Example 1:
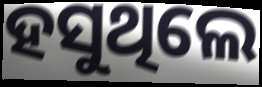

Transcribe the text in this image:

ହସୁଥିଲେ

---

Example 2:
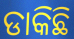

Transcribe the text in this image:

ଡାକିଛି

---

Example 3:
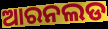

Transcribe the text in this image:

ଆରନଲଡ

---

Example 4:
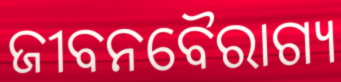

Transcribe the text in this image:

ଜୀବନବୈରାଗ୍ୟ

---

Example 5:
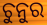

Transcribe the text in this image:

ଚୁନୁର